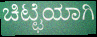
ಚಿಟ್ಟೆಯಾಗಿ